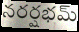
నరర్షభమ్